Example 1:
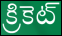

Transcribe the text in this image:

క్రికెట్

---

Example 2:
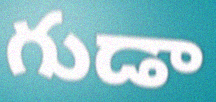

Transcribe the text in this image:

గుడా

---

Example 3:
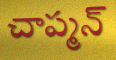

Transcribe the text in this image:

చాప్మన్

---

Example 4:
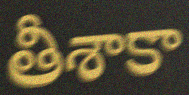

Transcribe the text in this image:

తీశాకా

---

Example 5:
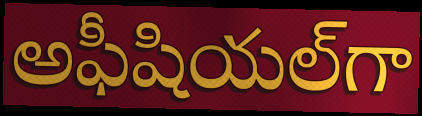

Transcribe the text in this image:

అఫీషియల్‌గా